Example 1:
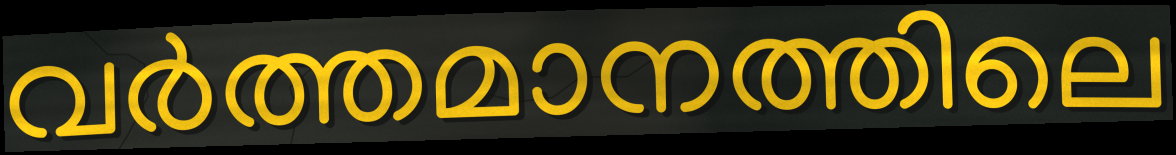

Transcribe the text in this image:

വർത്തമാനത്തിലെ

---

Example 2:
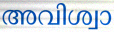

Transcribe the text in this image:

അവിശ്വാ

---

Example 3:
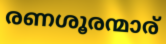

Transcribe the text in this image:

രണശൂരന്മാര്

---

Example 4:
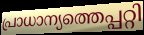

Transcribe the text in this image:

പ്രാധാന്യത്തെപ്പറ്റി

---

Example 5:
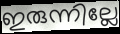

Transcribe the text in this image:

ഇരുന്നില്ലേ